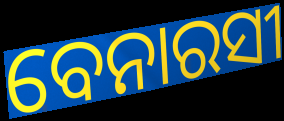
ବେନାରସୀ